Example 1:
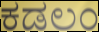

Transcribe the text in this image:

ಕಡಲಂ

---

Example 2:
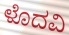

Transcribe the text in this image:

ಳೊದವಿ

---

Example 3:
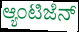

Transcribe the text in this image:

ಆ್ಯಂಟಿಜೆನ್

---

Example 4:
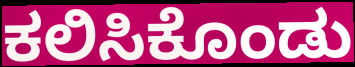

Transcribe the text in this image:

ಕಲಿಸಿಕೊಂಡು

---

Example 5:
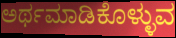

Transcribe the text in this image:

ಅರ್ಥಮಾಡಿಕೊಳ್ಳುವ